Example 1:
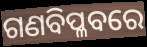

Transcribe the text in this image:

ଗଣବିପ୍ଳବରେ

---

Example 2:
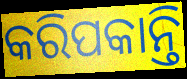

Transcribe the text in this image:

କରିପକାନ୍ତି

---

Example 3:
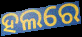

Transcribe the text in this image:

ହଲରେ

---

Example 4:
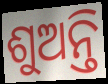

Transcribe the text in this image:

ଶୁଅନ୍ତି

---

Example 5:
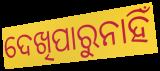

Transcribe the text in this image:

ଦେଖିପାରୁନାହିଁ